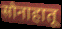
सोनाहातू